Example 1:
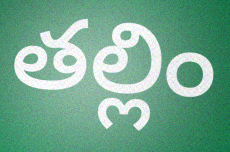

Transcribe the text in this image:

తల్లిం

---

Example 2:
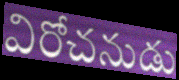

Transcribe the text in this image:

విరోచనుడు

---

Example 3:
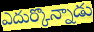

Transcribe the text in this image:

ఎదుర్కొన్నాడు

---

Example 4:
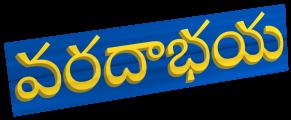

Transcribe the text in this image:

వరదాభయ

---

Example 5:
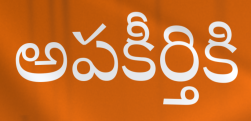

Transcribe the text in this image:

అపకీర్తికి